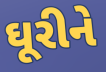
ઘૂરીને